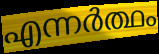
എന്നർത്ഥം